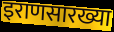
इराणसारख्या